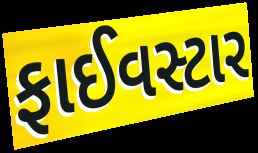
ફાઈવસ્ટાર